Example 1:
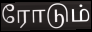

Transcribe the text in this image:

ரோடும்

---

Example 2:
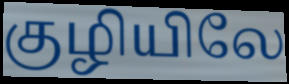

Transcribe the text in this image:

குழியிலே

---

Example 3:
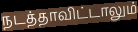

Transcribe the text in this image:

நடத்தாவிட்டாலும்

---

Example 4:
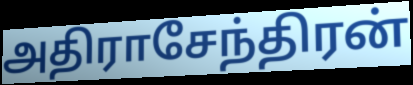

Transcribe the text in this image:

அதிராசேந்திரன்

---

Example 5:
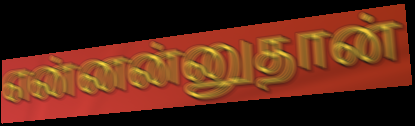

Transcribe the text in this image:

என்னன்னுதான்